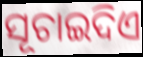
ସୂଚାଇଦିଏ